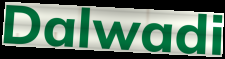
Dalwadi